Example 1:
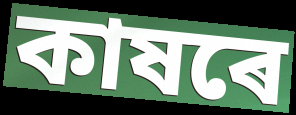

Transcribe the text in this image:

কাষৰে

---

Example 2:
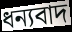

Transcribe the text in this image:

ধন্যবাদ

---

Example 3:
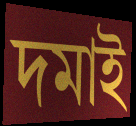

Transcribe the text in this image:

দমাই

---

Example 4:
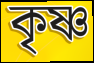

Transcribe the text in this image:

কৃষ্ণ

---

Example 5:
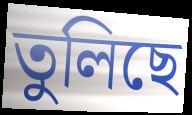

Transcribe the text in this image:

তুলিছে